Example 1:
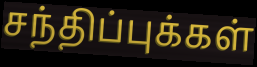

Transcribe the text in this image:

சந்திப்புக்கள்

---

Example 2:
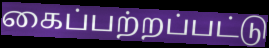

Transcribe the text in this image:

கைப்பற்றப்பட்டு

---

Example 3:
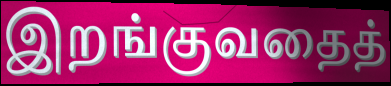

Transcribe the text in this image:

இறங்குவதைத்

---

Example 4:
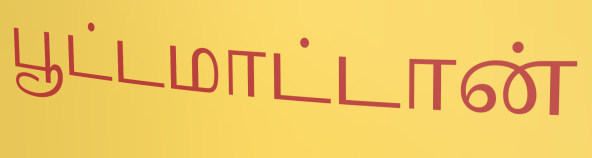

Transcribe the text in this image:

பூட்டமாட்டான்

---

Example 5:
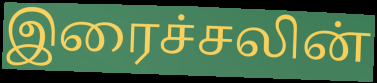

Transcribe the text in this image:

இரைச்சலின்